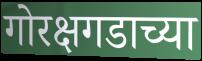
गोरक्षगडाच्या